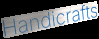
Handicrafts